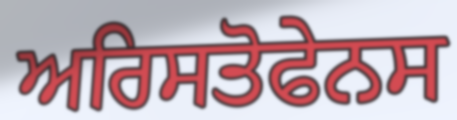
ਅਰਿਸਤੋਫੇਨਸ